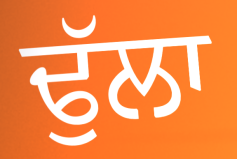
ਢੁੱਲਾ